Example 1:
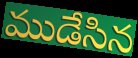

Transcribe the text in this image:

ముడేసిన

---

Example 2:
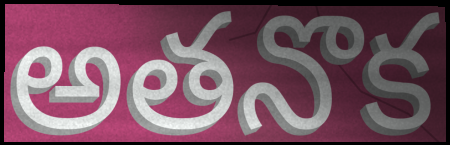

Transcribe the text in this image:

అతనొక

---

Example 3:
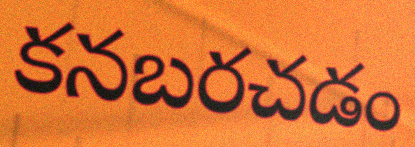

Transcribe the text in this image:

కనబరచడం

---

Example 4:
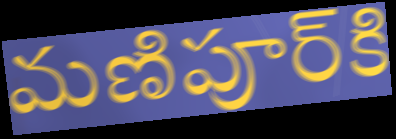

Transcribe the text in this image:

మణిపూర్‌కి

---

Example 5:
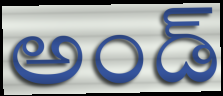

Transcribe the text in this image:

అండ్